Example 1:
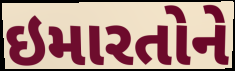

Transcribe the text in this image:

ઇમારતોને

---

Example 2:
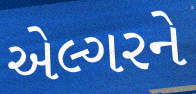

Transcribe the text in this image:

એલ્ગરને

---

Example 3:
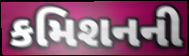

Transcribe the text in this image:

કમિશનની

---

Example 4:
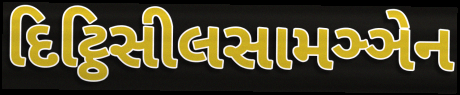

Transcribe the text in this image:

દિટ્ઠિસીલસામઞ્ઞેન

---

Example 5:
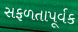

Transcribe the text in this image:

સફળતાપૂર્વક